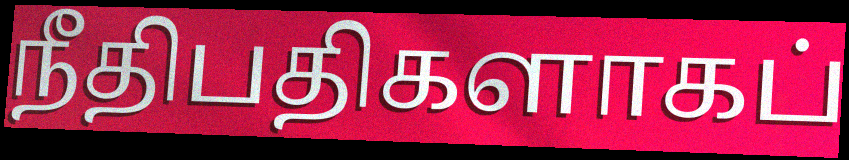
நீதிபதிகளாகப்